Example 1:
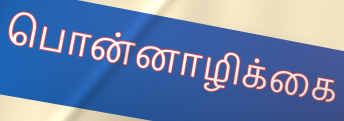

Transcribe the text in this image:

பொன்னாழிக்கை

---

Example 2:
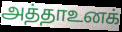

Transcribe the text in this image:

அத்தாஉனக்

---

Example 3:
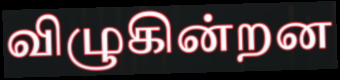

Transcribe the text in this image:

விழுகின்றன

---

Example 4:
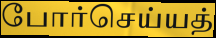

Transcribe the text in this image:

போர்செய்யத்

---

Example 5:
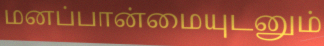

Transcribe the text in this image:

மனப்பான்மையுடனும்